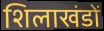
शिलाखंडों